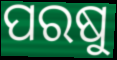
ପରଷୁ